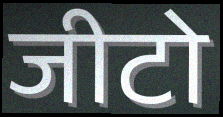
जीटो